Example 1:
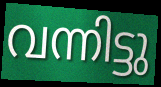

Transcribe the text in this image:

വന്നിട്ടു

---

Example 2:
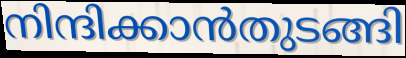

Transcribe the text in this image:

നിന്ദിക്കാൻതുടങ്ങി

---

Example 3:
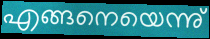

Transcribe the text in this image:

എങ്ങനെയെന്നു്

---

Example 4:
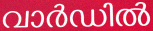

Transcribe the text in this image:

വാർഡിൽ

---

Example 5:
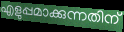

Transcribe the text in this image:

എളുപ്പമാക്കുന്നതിന്